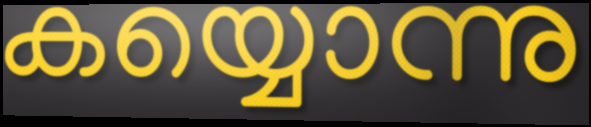
കയ്യൊന്നു